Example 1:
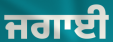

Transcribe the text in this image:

ਜਗਾਈ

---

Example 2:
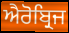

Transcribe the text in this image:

ਐਰੋਬ੍ਰਿਜ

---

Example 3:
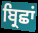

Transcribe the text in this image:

ਬ੍ਰਿਛਾਂ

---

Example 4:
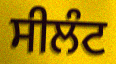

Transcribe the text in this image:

ਸੀਲੰਟ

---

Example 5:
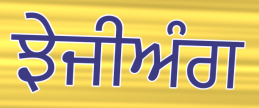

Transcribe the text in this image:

ਝੇਜੀਅੰਗ